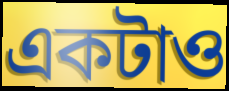
একটাও